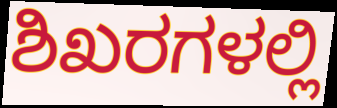
ಶಿಖರಗಳಲ್ಲಿ